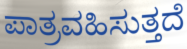
ಪಾತ್ರವಹಿಸುತ್ತದೆ